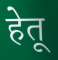
हेतू